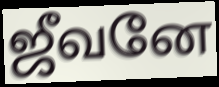
ஜீவனே